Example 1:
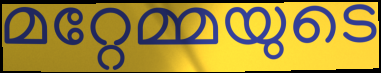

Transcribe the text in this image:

മറ്റേമ്മയുടെ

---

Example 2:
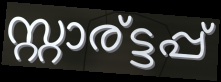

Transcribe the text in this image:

സ്റ്റാര്ട്ടപ്പ്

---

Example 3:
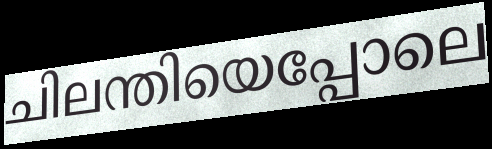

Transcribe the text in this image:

ചിലന്തിയെപ്പോലെ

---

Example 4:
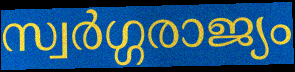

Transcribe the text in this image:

സ്വർഗ്ഗരാജ്യം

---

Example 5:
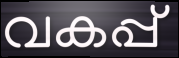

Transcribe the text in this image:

വകപ്പ്